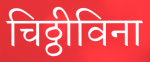
चिठ्ठीविना